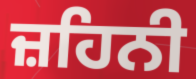
ਜ਼ਹਿਨੀ